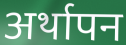
अर्थापन